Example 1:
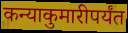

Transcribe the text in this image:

कन्याकुमारीपर्यंत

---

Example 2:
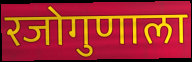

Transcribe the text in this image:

रजोगुणाला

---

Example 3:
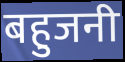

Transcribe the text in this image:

बहुजनी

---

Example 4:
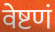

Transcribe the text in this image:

वेष्टणं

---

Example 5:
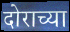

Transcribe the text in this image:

दोराच्या